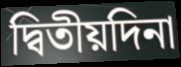
দ্বিতীয়দিনা